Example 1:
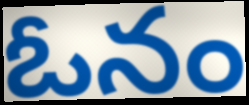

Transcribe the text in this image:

ఓనం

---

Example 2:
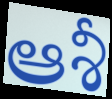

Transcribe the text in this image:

ఆశీ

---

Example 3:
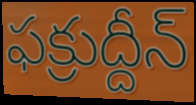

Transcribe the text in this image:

ఫక్రుద్దీన్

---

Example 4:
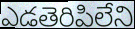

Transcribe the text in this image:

ఎడతెరిపిలేని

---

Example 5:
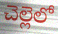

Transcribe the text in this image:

చెల్లెలో